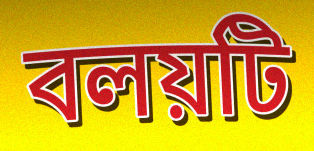
বলয়টি